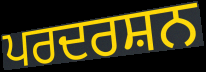
ਪਰਦਰਸ਼ਨ